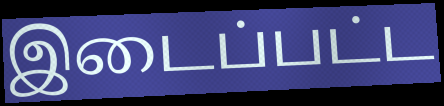
இடைப்பட்ட